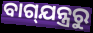
ବାଗ୍‌ଯନ୍ତ୍ରରୁ